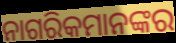
ନାଗରିକମାନଙ୍କର